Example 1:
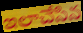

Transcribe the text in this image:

ఇలాచేసిన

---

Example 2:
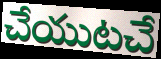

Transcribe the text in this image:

చేయుటచే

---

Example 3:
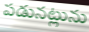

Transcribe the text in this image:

పడునట్లును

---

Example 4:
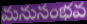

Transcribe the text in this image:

మనుసంభవ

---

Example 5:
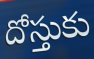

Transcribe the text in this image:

దోస్తుకు